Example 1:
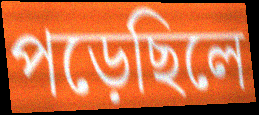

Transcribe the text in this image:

পড়েছিলে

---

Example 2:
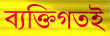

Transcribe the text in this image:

ব্যক্তিগতই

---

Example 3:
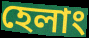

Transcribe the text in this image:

হেলাং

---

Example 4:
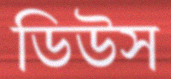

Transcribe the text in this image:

ডিউস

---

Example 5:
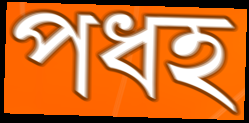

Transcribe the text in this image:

পধহ